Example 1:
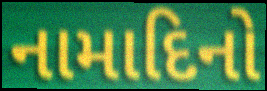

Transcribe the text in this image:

નામાદિનો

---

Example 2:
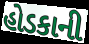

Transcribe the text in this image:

હોડકાની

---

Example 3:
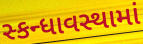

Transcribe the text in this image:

સ્કન્ધાવસ્થામાં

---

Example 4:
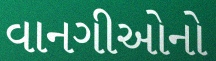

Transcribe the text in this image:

વાનગીઓનો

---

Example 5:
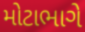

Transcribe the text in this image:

મોટાભાગે